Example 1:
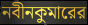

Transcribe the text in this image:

নবীনকুমারের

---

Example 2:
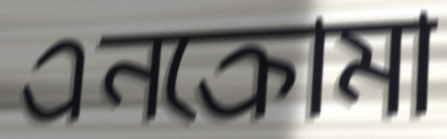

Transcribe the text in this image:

এনক্রোমা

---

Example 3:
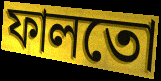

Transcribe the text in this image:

ফালতো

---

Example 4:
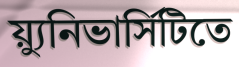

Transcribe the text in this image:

য়্যুনিভার্সিটিতে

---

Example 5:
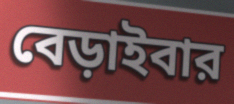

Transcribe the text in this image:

বেড়াইবার